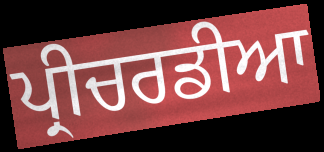
ਪ੍ਰੀਚਰਡੀਆ